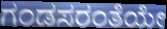
ಗಂಡಸರಂತೆಯೇ